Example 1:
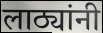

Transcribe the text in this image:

लाठ्यांनी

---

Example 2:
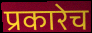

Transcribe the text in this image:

प्रकारेच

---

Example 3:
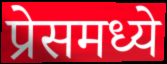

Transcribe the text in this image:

प्रेसमध्ये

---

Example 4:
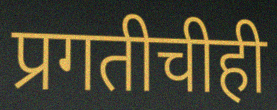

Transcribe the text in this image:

प्रगतीचीही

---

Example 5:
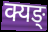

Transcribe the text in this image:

क्यङ्